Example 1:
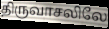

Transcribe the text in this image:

திருவாசலிலே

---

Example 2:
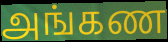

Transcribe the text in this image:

அங்கண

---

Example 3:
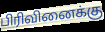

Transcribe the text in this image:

பிரிவினைக்கு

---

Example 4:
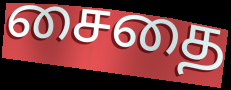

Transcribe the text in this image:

சைதை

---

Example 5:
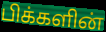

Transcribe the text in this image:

பிக்களின்